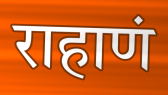
राहाणं